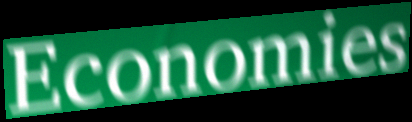
Economies